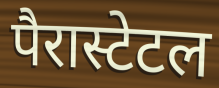
पैरास्टेटल